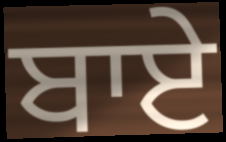
ਬਾਏ